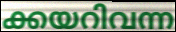
ക്കയറിവന്ന